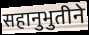
सहानुभुतीने